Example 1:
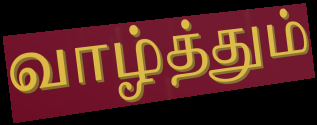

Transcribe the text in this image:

வாழ்த்தும்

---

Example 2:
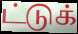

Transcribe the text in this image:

ட்டுக்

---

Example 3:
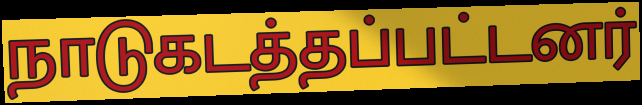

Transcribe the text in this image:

நாடுகடத்தப்பட்டனர்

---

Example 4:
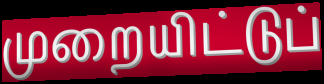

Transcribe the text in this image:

முறையிட்டுப்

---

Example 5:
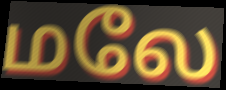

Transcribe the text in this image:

மலே